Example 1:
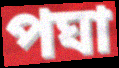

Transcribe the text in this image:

পঘা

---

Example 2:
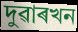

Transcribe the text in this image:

দুৱাৰখন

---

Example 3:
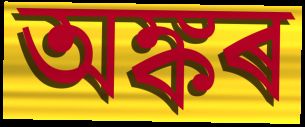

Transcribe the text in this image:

অঙ্কৰ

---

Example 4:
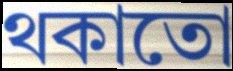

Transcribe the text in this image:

থকাতো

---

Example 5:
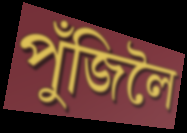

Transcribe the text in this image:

পুঁজিলৈ